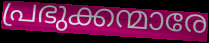
പ്രഭുക്കന്മാരേ